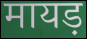
मायड़